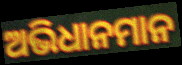
ଅଭିଧାନମାନ